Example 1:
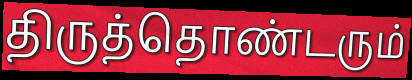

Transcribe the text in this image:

திருத்தொண்டரும்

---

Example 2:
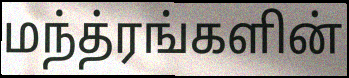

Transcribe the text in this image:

மந்த்ரங்களின்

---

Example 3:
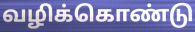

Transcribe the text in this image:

வழிக்கொண்டு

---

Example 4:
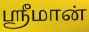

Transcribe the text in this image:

ஸ்ரீமான்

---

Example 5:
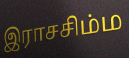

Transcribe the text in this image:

இராசசிம்ம